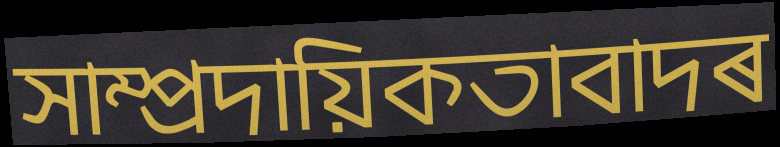
সাম্প্ৰদায়িকতাবাদৰ